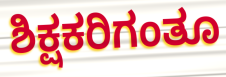
ಶಿಕ್ಷಕರಿಗಂತೂ